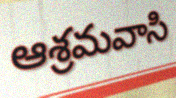
ఆశ్రమవాసి